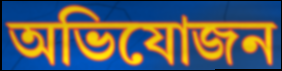
অভিযোজন